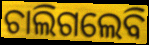
ଚାଲିଗଲେବି